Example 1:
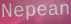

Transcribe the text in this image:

Nepean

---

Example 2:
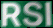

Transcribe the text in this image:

RSI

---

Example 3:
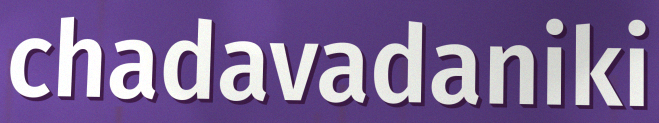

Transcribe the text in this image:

chadavadaniki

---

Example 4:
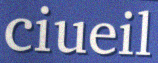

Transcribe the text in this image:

ciueil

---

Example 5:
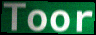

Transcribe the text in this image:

Toor